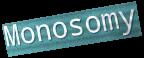
Monosomy